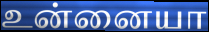
உன்னையா